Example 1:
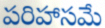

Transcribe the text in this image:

పరిహాసమే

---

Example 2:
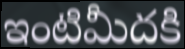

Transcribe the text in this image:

ఇంటిమీదకి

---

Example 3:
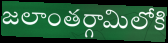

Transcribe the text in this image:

జలాంతర్గామిలోకి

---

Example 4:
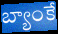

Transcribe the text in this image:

బ్యాంకే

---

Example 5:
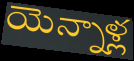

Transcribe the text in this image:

యెన్నాళ్ల